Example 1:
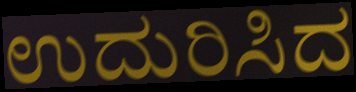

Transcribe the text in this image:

ಉದುರಿಸಿದ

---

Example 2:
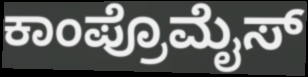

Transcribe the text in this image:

ಕಾಂಪ್ರೊಮೈಸ್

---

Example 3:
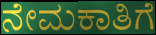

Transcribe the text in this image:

ನೇಮಕಾತಿಗೆ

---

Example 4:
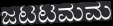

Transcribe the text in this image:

ಜಟಟಮಮ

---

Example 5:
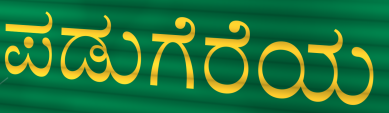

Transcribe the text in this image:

ಪಡುಗೆರೆಯ